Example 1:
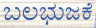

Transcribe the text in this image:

ಬಲಭುಜಕೆ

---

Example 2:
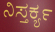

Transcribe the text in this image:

ನಿಸ್ತರ್ಕ್ಯ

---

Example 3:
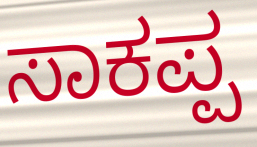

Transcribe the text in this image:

ಸಾಕಪ್ಪ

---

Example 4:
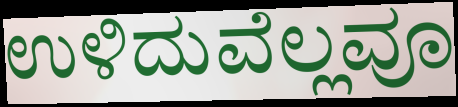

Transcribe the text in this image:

ಉಳಿದುವೆಲ್ಲವೂ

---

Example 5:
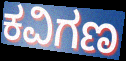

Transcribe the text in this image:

ಕವಿಗಣ